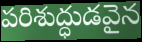
పరిశుద్ధుడవైన